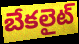
బేకలైట్